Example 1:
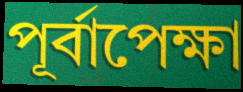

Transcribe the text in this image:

পূর্বাপেক্ষা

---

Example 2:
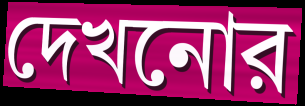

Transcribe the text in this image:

দেখনোর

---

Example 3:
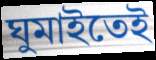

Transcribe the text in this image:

ঘুমাইতেই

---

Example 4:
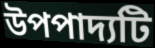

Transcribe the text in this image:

উপপাদ্যটি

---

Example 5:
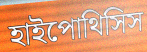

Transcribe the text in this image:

হাইপোথিসিস